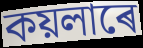
কয়লাৰে